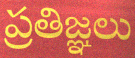
ప్రతిజ్ఞలు